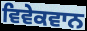
ਵਿਵੇਕਵਾਨ